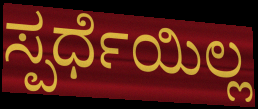
ಸ್ಪರ್ಧೆಯಿಲ್ಲ